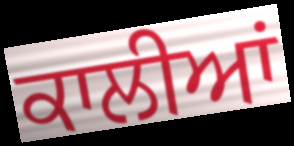
ਕਾਲੀਆਂ